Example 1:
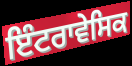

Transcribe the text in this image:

ਇੰਟਰਾਵੇਸਿਕ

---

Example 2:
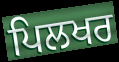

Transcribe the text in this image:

ਪਿਲਖਰ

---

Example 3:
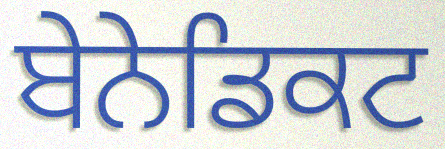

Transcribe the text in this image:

ਬੇਨੇਡਿਕਟ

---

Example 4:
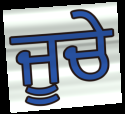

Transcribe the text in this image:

ਜੂਚੇ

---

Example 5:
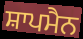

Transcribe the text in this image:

ਸ਼ਾਪਮੈਨ